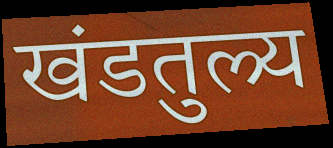
खंडतुल्य